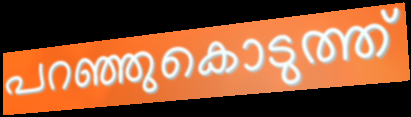
പറഞ്ഞുകൊടുത്ത്